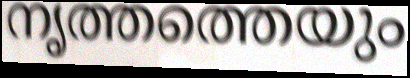
നൃത്തത്തെയും